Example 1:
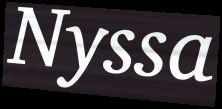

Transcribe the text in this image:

Nyssa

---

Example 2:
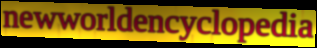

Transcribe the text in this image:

newworldencyclopedia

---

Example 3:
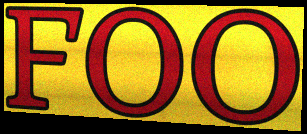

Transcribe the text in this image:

FOO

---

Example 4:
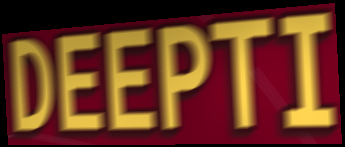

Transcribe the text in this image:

DEEPTI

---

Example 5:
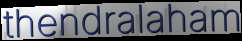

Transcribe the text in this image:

thendralaham